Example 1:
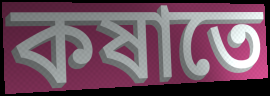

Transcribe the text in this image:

কষাতে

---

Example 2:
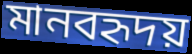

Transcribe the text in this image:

মানবহৃদয়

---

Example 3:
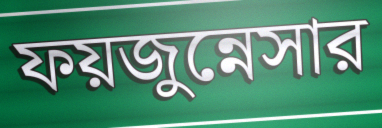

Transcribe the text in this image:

ফয়জুন্নেসার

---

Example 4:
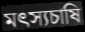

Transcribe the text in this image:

মৎস্যচাষি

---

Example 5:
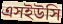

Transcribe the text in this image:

এসইউসি